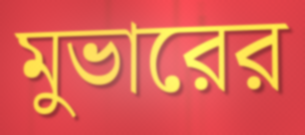
মুভারের